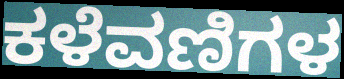
ಕಳೆವಣಿಗಳ